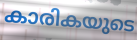
കാരികയുടെ